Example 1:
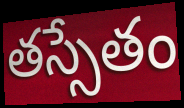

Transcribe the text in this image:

తస్సేతం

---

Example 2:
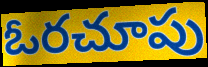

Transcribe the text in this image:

ఓరచూపు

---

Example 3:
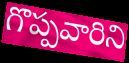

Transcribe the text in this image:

గొప్పవారిని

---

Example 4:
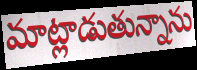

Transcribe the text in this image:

మాట్లాడుతున్నాను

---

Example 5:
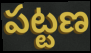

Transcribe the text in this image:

పట్టణ